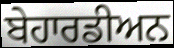
ਬੇਹਾਰਡੀਅਨ